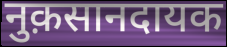
नुक़सानदायक